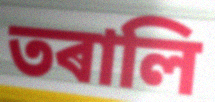
তৰালি